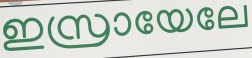
ഇസ്രായേലേ